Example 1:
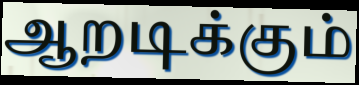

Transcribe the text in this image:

ஆறடிக்கும்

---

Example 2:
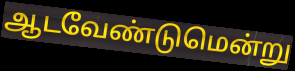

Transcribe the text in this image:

ஆடவேண்டுமென்று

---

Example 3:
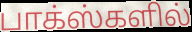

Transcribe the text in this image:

பாக்ஸ்களில்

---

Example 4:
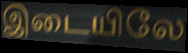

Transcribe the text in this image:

இடையிலே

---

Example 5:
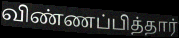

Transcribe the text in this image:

விண்ணப்பித்தார்